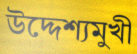
উদ্দেশ্যমুখী